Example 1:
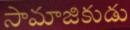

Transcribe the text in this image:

సామాజికుడు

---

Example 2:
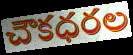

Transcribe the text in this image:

చౌకధరల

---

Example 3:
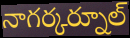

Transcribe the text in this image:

నాగర్కర్నూల్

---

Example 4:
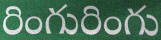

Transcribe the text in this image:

రింగురింగు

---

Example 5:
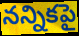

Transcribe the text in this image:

నన్నికపై